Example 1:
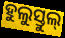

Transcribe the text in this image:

ହୁଲୁସ୍ତୁଲ୍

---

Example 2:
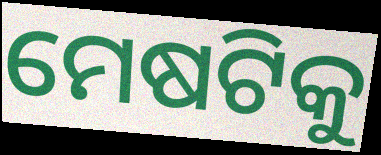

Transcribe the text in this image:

ମେଷଟିକୁ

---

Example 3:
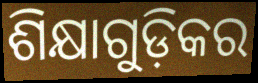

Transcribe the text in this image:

ଶିକ୍ଷାଗୁଡ଼ିକର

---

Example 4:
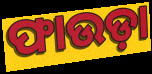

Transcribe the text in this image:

ଫାଉଡ଼ା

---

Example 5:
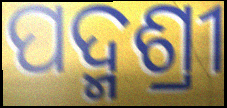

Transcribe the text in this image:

ପଦ୍ମଶ୍ରୀ